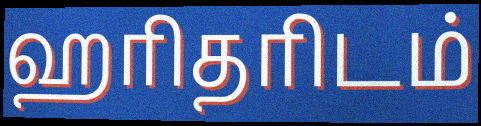
ஹரிதரிடம்